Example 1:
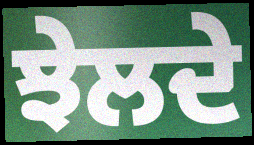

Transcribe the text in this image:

ਝੇਲਦੇ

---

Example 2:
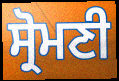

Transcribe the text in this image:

ਸ੍ਰੋਮਣੀ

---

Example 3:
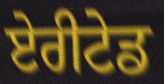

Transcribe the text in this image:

ਏਰੀਟੇਡ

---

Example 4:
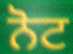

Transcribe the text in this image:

ਨੋਟ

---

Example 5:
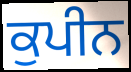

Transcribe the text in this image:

ਕੁਪੀਨ